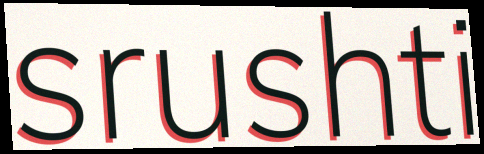
srushti